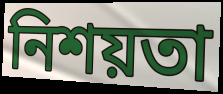
নিশয়তা